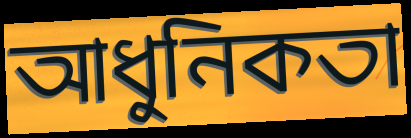
আধুনিকতা